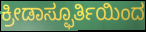
ಕ್ರೀಡಾಸ್ಫೂರ್ತಿಯಿಂದ